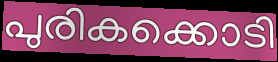
പുരികക്കൊടി